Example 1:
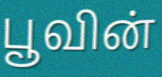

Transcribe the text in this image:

பூவின்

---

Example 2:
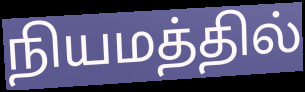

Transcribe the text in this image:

நியமத்தில்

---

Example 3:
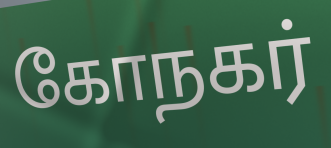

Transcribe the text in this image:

கோநகர்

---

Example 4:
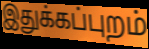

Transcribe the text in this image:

இதுக்கப்புறம்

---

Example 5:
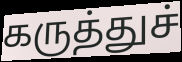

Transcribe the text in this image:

கருத்துச்